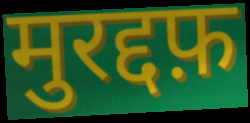
मुरद्दफ़